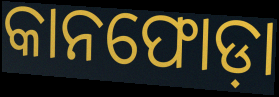
କାନଫୋଡ଼ା